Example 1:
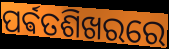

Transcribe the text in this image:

ପର୍ଵତଶିଖରରେ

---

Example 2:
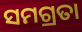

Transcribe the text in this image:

ସମଗ୍ରତା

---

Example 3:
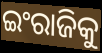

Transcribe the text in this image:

ଇଂରାଜିକୁ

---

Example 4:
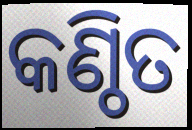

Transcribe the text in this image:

କଣ୍ଠିତ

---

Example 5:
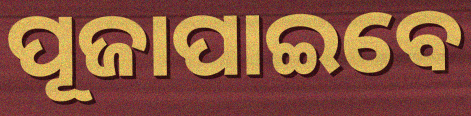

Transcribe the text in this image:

ପୂଜାପାଇବେ